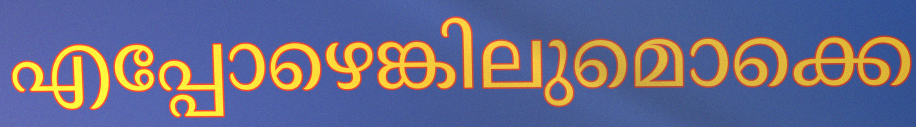
എപ്പോഴെങ്കിലുമൊക്കെ